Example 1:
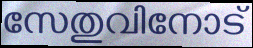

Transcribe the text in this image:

സേതുവിനോട്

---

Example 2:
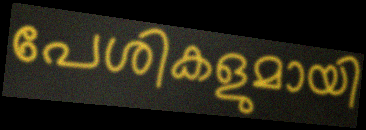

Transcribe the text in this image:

പേശികളുമായി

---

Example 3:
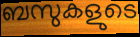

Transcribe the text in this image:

ബസുകളുടെ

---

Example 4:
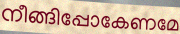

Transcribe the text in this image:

നീങ്ങിപ്പോകേണമേ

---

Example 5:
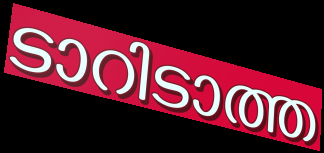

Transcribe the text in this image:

ടാറിടാത്ത